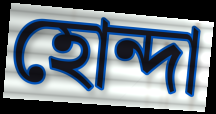
হোন্দা